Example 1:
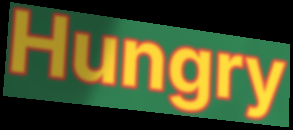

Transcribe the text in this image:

Hungry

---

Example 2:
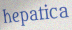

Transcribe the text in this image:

hepatica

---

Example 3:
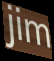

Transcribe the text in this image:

jim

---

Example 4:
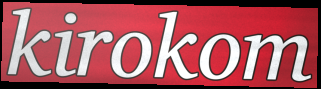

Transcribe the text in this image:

kirokom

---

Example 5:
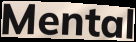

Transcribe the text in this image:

Mental